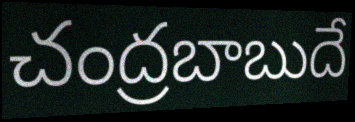
చంద్రబాబుదే